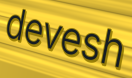
devesh